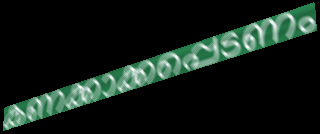
കണക്കാക്കപ്പെടണം